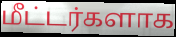
மீட்டர்களாக